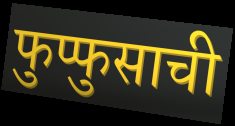
फुप्फुसाची